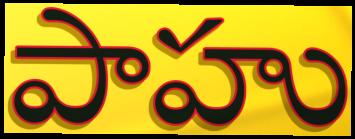
పాహు